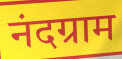
नंदग्राम